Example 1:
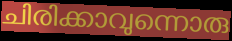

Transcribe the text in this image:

ചിരിക്കാവുന്നൊരു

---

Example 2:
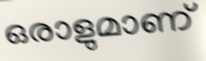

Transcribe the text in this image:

ഒരാളുമാണ്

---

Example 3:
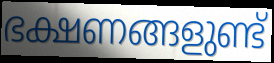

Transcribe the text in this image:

ഭക്ഷണങ്ങളുണ്ട്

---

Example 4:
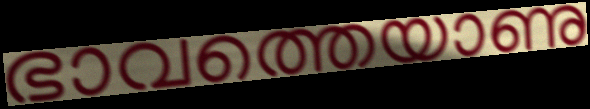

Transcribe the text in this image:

ഭാവത്തെയാണു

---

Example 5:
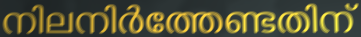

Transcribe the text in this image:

നിലനിർത്തേണ്ടതിന്